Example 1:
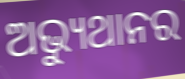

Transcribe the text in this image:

ଅଭ୍ୟୁଥାନର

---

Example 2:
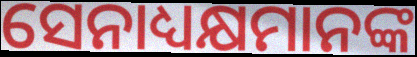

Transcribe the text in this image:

ସେନାଧ୍ୟକ୍ଷମାନଙ୍କ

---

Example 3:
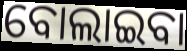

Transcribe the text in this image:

ବୋଲାଇବା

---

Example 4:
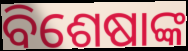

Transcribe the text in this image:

ବିଶେଷାଙ୍କ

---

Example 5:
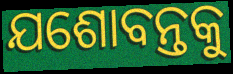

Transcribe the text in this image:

ଯଶୋବନ୍ତକୁ